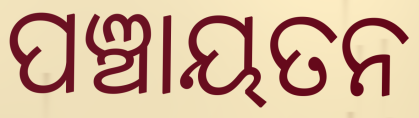
ପଞ୍ଚାୟତନ